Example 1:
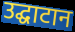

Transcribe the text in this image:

उद्घाटान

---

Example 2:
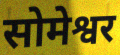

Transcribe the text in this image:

सोमेश्वर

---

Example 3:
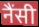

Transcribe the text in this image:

नैंसी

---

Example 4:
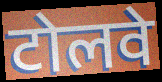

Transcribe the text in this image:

टोलवे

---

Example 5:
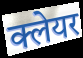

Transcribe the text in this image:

क्‍लेयर